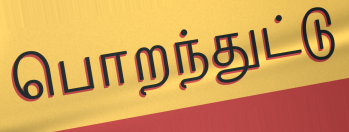
பொறந்துட்டு